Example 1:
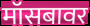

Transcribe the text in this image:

मॉसबावर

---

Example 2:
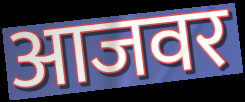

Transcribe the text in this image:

आजवर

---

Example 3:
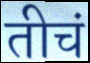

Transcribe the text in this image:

तीचं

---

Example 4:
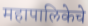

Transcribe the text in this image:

महापालिकेचे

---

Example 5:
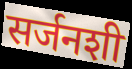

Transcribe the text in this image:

सर्जनशी